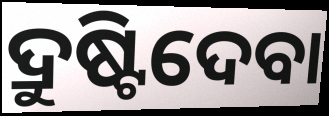
ଦ୍ରୁଷ୍ଟିଦେବା